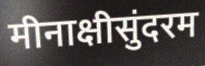
मीनाक्षीसुंदरम